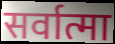
सर्वात्मा